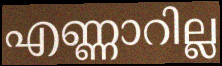
എണ്ണാറില്ല